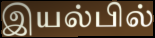
இயல்பில்